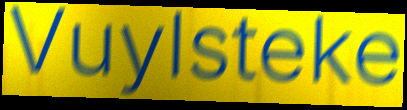
Vuylsteke